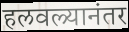
हलवल्यानंतर